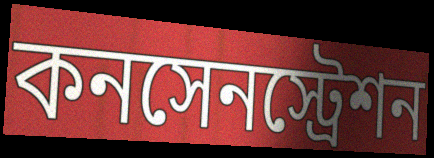
কনসেনস্ট্রেশন